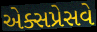
એક્સપ્રેસવે